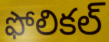
ఫోలికల్